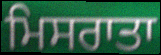
ਮਿਸਰਾਤਾ